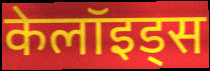
केलॉइड्स